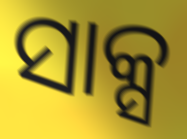
ସାକ୍ସ